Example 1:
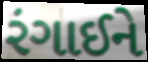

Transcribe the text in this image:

રંગાઈને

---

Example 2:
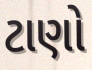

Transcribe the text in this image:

ટાણો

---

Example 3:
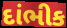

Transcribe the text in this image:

દાંભીક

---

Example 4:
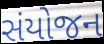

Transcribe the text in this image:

સંયોજન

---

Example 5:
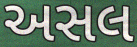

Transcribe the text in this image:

અસલ